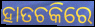
ହାତଚକିରେ